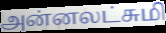
அன்னலட்சுமி